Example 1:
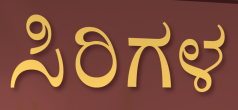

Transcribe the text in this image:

ಸಿರಿಗಳ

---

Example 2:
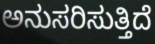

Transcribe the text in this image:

ಅನುಸರಿಸುತ್ತಿದೆ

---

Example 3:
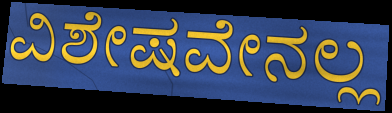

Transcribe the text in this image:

ವಿಶೇಷವೇನಲ್ಲ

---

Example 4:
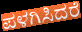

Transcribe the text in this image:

ಪಳಗಿಸಿದರೆ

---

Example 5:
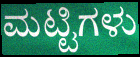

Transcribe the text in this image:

ಮಟ್ಟಿಗಳು